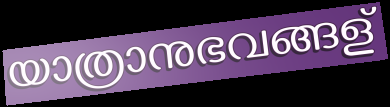
യാത്രാനുഭവങ്ങള്